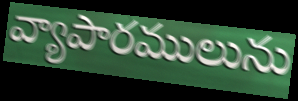
వ్యాపారములును